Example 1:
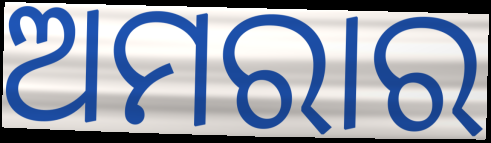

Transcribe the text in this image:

ଅମରାର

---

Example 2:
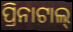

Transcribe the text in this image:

ପ୍ରିନାଟାଲ୍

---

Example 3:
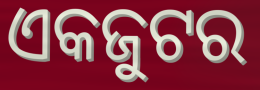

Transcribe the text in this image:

ଏକଜୁଟର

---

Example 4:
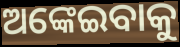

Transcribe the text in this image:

ଅଙ୍କେଇବାକୁ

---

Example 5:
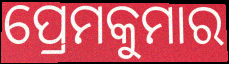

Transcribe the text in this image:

ପ୍ରେମକୁମାର